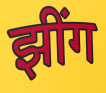
झींग